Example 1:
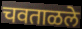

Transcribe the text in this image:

चवताळले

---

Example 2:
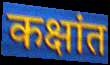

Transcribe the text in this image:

कक्षांत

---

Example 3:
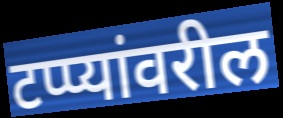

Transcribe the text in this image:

टप्प्यांवरील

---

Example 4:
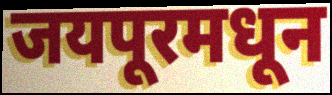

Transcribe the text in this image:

जयपूरमधून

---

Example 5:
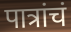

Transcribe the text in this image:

पात्रांचं